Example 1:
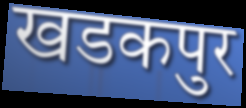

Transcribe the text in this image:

खडकपुर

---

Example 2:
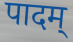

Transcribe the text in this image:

पादम्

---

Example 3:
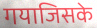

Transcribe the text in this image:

गयाजिसके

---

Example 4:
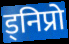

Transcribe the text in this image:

ड्निप्रो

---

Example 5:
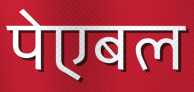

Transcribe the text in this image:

पेएबल